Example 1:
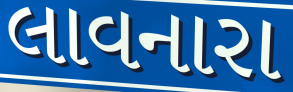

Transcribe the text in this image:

લાવનારા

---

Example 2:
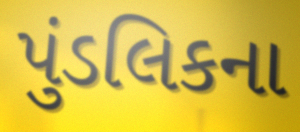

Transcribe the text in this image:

પુંડલિકના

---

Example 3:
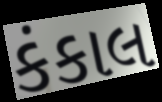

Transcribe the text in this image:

કંકાલ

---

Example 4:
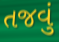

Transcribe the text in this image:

તજવું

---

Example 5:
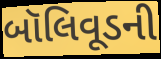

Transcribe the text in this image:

બૉલિવૂડની